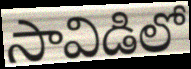
సావిడిలో